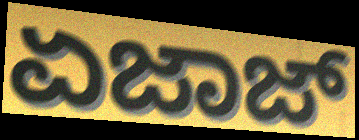
ಏಜಾಜ್